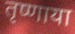
तृष्णाया